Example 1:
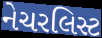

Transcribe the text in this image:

નેચરલિસ્ટ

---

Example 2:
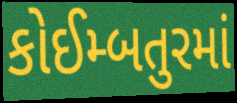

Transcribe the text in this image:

કોઈમ્બતુરમાં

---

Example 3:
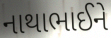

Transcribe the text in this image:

નાથાભાઈને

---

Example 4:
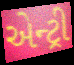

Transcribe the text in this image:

એન્‍ટ્રી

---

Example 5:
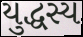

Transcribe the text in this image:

યુદ્ધસ્ય